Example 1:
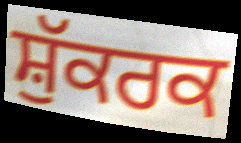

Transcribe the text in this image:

ਸ਼ੁੱਕਰਕ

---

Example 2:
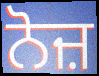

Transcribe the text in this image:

ਨੋਜ਼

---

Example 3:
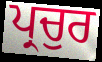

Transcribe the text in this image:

ਪ੍ਰਚੁਰ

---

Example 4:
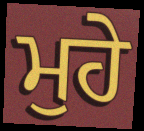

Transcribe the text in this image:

ਮੁਹੇ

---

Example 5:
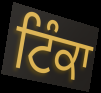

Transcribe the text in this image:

ਟਿੰਕਾ